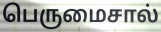
பெருமைசால்